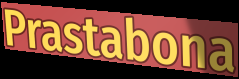
Prastabona